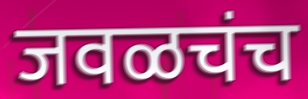
जवळचंच